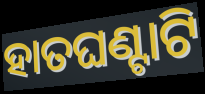
ହାତଘଣ୍ଟାଟି